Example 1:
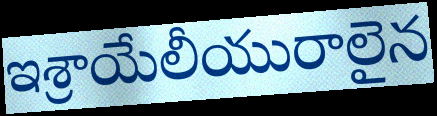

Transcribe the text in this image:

ఇశ్రాయేలీయురాలైన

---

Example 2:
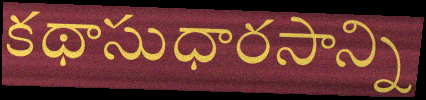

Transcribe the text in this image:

కథాసుధారసాన్ని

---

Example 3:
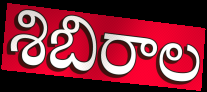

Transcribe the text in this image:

శిబిరాల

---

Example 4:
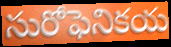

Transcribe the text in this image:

సురోఫెనికయ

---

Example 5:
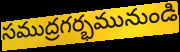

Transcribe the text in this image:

సముద్రగర్భమునుండి